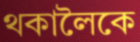
থকালৈকে